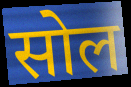
सोल